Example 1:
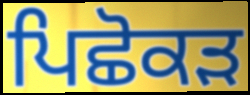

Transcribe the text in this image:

ਪਿਛੋਕੜ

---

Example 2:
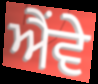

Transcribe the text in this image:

ਐਂਵੇ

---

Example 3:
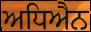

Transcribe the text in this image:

ਅਧਿਐਨ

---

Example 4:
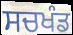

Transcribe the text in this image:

ਸਚਖੰਡ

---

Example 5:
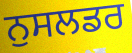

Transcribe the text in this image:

ਨੁਸਲਡਰ